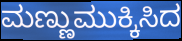
ಮಣ್ಣುಮುಕ್ಕಿಸಿದ